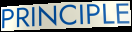
PRINCIPLE